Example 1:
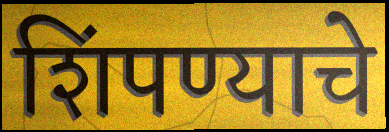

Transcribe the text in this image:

शिंपण्याचे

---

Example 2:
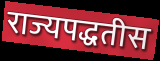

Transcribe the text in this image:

राज्यपद्धतीस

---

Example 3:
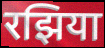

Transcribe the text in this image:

रझिया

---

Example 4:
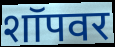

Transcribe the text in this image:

शॉपवर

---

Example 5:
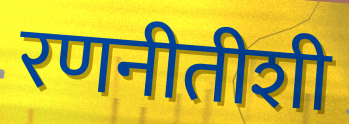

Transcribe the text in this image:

रणनीतीशी